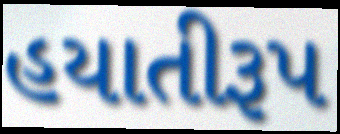
હયાતીરૂપ